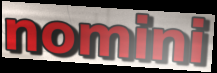
nomini